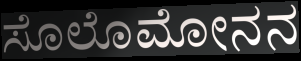
ಸೊಲೊಮೋನನ